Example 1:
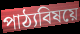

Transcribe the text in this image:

পাঠ্যবিষয়ে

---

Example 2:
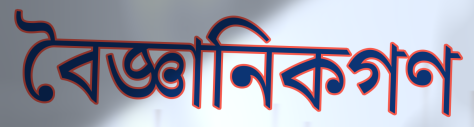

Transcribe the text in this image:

বৈজ্ঞানিকগণ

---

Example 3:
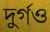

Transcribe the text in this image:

দুর্গও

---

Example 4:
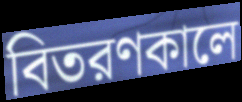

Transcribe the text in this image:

বিতরণকালে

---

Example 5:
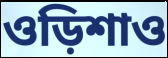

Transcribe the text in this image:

ওড়িশাও